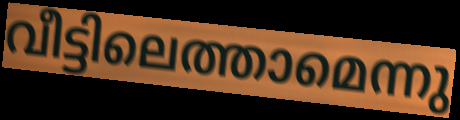
വീട്ടിലെത്താമെന്നു